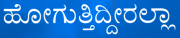
ಹೋಗುತ್ತಿದ್ದೀರಲ್ಲಾ